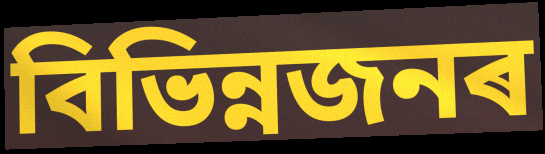
বিভিন্নজনৰ